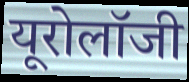
यूरोलॉजी